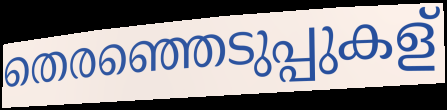
തെരഞ്ഞെടുപ്പുകള്